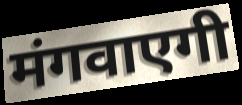
मंगवाएगी